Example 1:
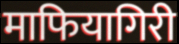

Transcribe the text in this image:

माफियागिरी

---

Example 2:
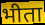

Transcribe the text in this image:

भीता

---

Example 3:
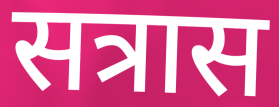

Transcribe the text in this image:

सत्रास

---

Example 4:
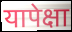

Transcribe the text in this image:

यापेक्षा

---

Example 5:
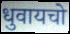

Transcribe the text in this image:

धुवायचो